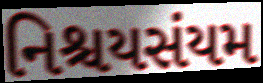
નિશ્ચયસંયમ